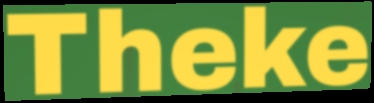
Theke